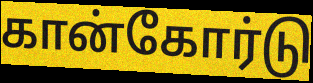
கான்கோர்டு